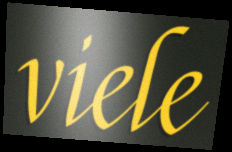
viele